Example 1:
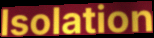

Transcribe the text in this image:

Isolation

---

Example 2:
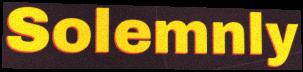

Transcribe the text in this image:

Solemnly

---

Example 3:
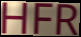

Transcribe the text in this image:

HFR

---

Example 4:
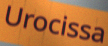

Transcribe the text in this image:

Urocissa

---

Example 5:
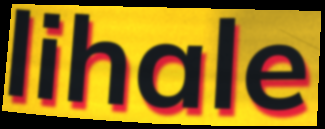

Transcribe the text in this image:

lihale